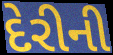
દેરીની